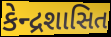
કેન્દ્રશાસિત